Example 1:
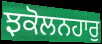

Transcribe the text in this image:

ਝਕੋਲਨਹਾਰੁ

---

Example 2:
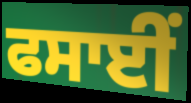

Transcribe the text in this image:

ਫਸਾਈਂ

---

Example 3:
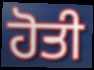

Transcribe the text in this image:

ਹੋਤੀ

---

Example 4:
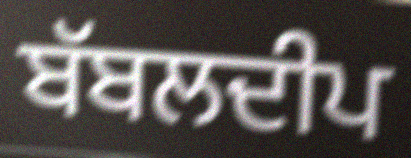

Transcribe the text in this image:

ਬੱਬਲਦੀਪ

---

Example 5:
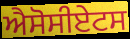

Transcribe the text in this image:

ਐਸੋਸੀਏਟਸ